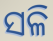
ସଳି